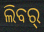
ଲିବର୍